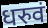
धरुवं